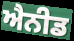
ਐਨੀਡ